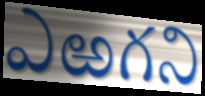
ఎఱగని